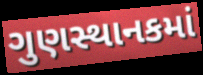
ગુણસ્થાનકમાં